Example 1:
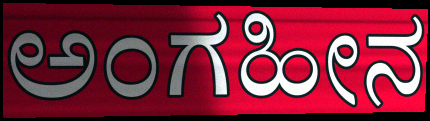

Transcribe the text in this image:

ಅಂಗಹೀನ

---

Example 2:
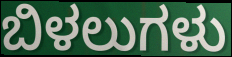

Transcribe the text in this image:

ಬಿಳಲುಗಳು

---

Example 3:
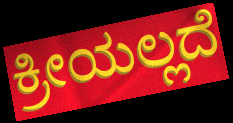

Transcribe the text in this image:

ಕ್ರೀಯಲ್ಲದೆ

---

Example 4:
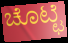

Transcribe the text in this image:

ಚೊಟ್ಟೆ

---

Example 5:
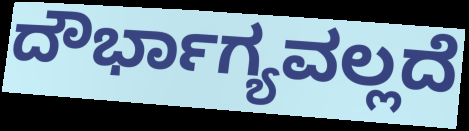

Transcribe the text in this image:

ದೌರ್ಭಾಗ್ಯವಲ್ಲದೆ